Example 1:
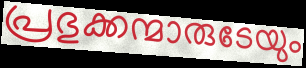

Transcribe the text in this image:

പ്രഭുക്കന്മാരുടേയും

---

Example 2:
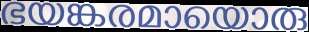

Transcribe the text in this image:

ഭയങ്കരമായൊരു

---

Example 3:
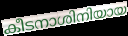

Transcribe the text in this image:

കീടനാശിനിയായ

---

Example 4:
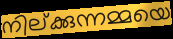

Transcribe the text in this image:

നില്ക്കുന്നമ്മയെ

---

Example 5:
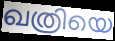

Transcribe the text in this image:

ഖത്രിയെ